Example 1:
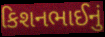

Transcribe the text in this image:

કિશનભાઈનું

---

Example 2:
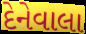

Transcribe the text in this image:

દેનેવાલા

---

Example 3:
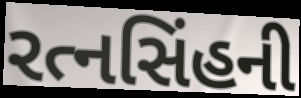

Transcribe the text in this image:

રત્નસિંહની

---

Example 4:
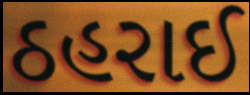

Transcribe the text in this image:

ઠહરાઈ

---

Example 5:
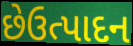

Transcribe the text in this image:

છેઉત્પાદન